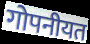
गोपनीयत